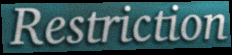
Restriction